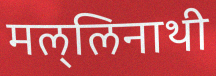
मल्लिनाथी